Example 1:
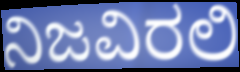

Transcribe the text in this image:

ನಿಜವಿರಲಿ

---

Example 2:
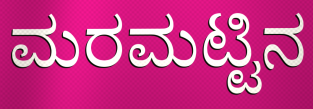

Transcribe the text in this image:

ಮರಮಟ್ಟಿನ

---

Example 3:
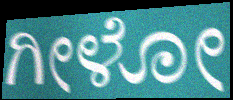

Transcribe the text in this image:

ಗೀಳೋ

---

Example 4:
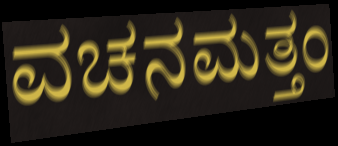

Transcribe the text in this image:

ವಚನಮತ್ತಂ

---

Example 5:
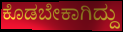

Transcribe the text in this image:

ಕೊಡಬೇಕಾಗಿದ್ದು